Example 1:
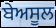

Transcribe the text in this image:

ਬੇਅਸੂਲ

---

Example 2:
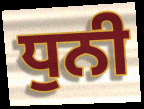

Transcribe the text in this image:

ਧੁਨੀ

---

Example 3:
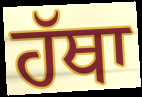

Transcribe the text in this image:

ਹੱਥਾ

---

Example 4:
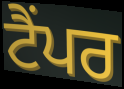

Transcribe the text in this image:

ਟੈਂਪਰ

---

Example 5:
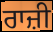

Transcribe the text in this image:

ਰਾਜ਼ੀ